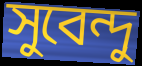
সুবেন্দু